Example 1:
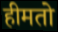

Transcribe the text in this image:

हीमतो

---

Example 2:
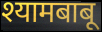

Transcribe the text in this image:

श्यामबाबू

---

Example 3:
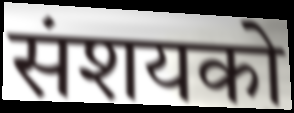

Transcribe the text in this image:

संशयको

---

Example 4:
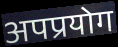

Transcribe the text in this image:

अपप्रयोग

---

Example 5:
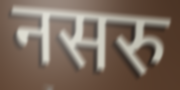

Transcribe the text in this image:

नसरु